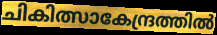
ചികിത്സാകേന്ദ്രത്തിൽ